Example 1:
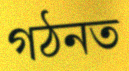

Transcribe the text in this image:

গঠনত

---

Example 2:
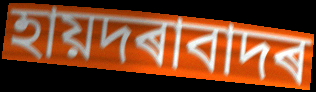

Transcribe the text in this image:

হায়দৰাবাদৰ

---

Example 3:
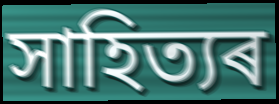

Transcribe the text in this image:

সাহিত্যৰ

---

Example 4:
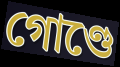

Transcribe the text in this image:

গোণ্ডে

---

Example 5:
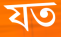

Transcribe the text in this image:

যত